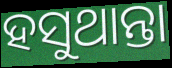
ହସୁଥାନ୍ତା